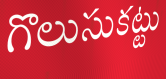
గొలుసుకట్టు